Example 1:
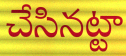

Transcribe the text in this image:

చేసినట్టా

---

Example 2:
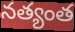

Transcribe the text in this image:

నత్యంత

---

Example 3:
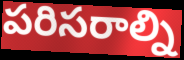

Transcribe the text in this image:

పరిసరాల్ని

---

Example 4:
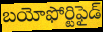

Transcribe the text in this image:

బయోఫోర్టిఫైడ్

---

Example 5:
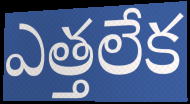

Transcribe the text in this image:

ఎత్తలేక